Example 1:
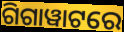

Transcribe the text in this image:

ଗିଗାୱାଟରେ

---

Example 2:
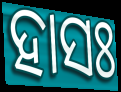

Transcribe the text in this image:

ହାସଃ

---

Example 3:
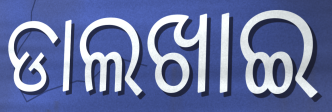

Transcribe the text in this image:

ଡାଲଖାଇ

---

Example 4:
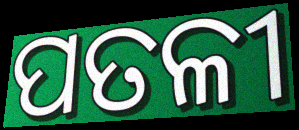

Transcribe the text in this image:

ପତଳୀ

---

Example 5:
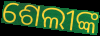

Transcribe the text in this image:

ଶେଲୀଙ୍କ